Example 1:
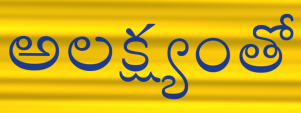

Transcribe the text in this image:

అలక్ష్యంతో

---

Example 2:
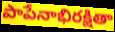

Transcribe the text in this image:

పాపేనాభిరక్షితా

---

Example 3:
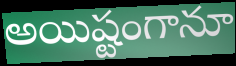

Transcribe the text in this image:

అయిష్టంగానూ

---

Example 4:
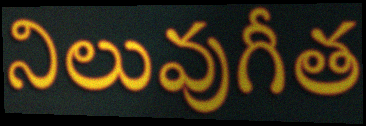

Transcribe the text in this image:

నిలువుగీత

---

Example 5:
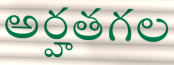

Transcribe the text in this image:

అర్హతగల